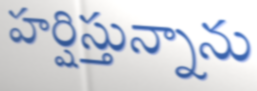
హర్షిస్తున్నాను